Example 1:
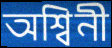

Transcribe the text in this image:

অশ্বিনী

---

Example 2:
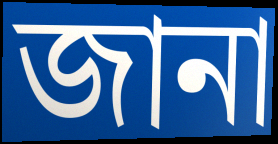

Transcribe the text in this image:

জানা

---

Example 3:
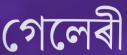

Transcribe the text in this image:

গেলেৰী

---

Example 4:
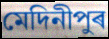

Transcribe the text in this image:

মেদিনীপুৰ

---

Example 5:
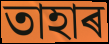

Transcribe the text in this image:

তাহাৰ